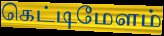
கெட்டிமேளம்